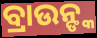
ବ୍ରାଉନ୍ଙ୍କ